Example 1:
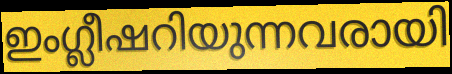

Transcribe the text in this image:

ഇംഗ്ലീഷറിയുന്നവരായി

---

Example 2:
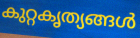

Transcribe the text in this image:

കുറ്റകൃത്യങ്ങൾ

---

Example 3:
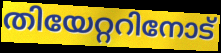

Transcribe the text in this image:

തിയേറ്ററിനോട്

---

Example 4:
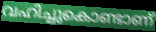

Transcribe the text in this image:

വഹിച്ചുകൊണ്ടാണ്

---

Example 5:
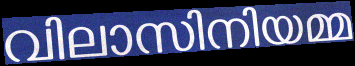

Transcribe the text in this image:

വിലാസിനിയമ്മ